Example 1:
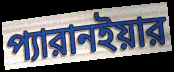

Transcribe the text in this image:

প্যারানইয়ার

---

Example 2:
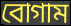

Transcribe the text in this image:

বোগাম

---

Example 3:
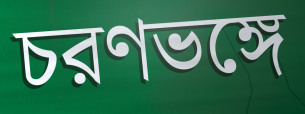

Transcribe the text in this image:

চরণভঙ্গে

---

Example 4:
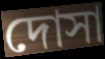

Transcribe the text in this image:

দোসা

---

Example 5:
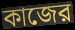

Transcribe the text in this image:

কাজের